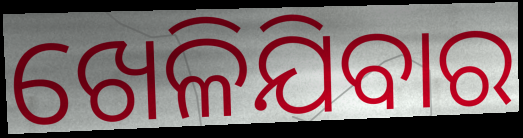
ଖେଳିଯିବାର